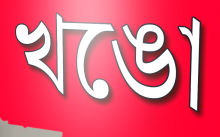
খঙো